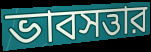
ভাবসত্তার